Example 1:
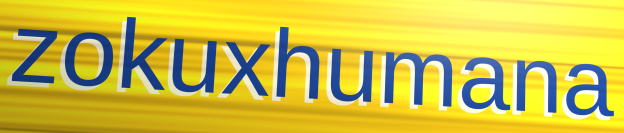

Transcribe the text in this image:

zokuxhumana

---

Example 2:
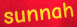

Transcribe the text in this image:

sunnah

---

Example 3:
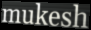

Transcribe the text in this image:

mukesh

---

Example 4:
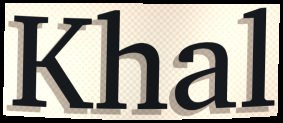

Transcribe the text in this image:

Khal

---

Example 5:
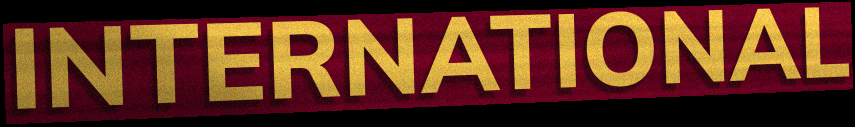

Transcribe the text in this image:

INTERNATIONAL